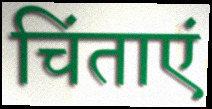
चिंताएं